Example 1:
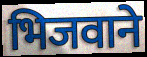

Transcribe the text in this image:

भिजवाने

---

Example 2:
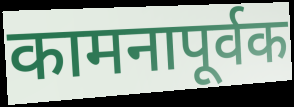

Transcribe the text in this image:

कामनापूर्वक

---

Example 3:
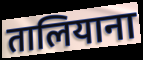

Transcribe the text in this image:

तालियाना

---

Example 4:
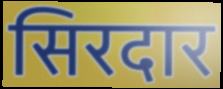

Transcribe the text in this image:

सिरदार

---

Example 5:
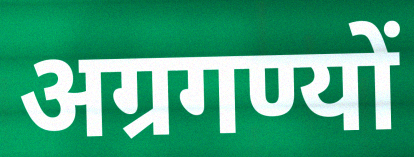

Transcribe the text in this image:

अग्रगण्यों